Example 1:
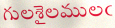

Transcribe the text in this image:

గులశైలములఁ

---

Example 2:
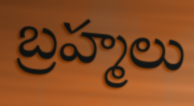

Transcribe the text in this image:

బ్రహ్మలు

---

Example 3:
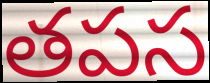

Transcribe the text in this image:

తపస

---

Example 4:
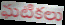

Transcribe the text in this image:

ఘటికలు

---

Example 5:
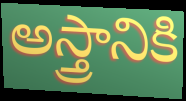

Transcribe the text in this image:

అస్త్రానికి